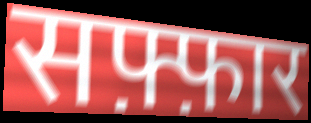
सफ़्फ़ार